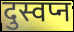
दुस्वप्न